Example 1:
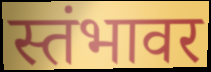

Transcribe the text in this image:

स्तंभावर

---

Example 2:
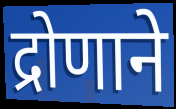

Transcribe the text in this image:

द्रोणाने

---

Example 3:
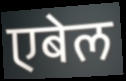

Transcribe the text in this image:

एबेल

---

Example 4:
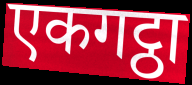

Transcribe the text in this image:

एकगट्ठा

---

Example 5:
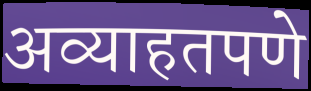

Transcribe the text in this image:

अव्याहतपणे